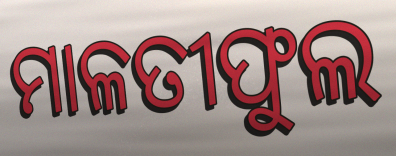
ମାଳତୀଫୁଲ